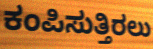
ಕಂಪಿಸುತ್ತಿರಲು